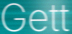
Gett